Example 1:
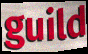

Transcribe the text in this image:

guild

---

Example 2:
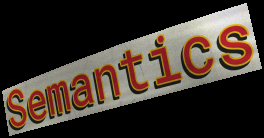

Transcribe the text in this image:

Semantics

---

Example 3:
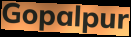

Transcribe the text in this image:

Gopalpur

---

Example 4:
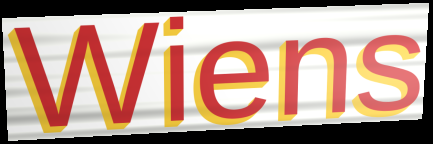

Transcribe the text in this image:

Wiens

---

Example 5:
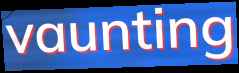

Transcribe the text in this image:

vaunting